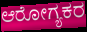
ಆರೋಗ್ಯಕರ